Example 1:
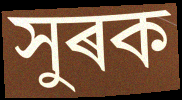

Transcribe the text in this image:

সুৰক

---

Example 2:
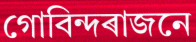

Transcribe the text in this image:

গোবিন্দৰাজনে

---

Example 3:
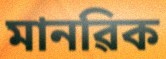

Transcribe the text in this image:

মানৱিক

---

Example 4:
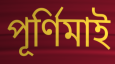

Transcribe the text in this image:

পূৰ্ণিমাই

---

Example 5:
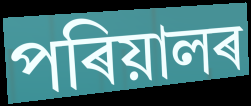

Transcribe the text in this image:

পৰিয়ালৰ